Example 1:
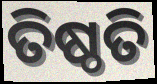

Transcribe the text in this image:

ତିଷ୍ଠତି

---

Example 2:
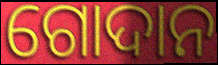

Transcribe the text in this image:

ଗୋଦାନ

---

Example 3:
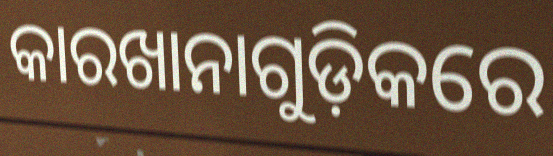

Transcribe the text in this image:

କାରଖାନାଗୁଡ଼ିକରେ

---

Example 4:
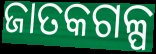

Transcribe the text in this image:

ଜାତକଗଳ୍ପ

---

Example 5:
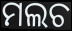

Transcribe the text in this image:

ମଲଚ